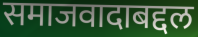
समाजवादाबद्दल